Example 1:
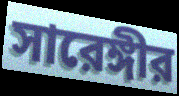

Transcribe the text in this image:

সারেঙ্গীর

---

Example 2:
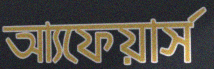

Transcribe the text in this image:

আ্যফেয়ার্স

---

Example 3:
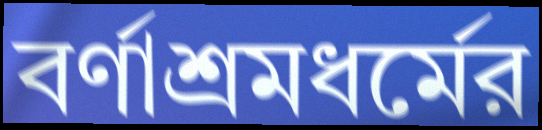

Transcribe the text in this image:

বর্ণাশ্রমধর্মের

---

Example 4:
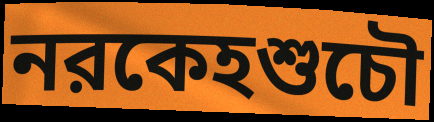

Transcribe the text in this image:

নরকেহশুচৌ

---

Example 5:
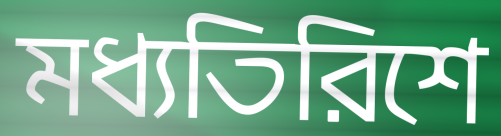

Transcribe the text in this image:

মধ্যতিরিশে